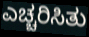
ಎಚ್ಚರಿಸಿತು